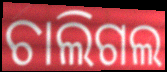
ଚାଲିଗଲ